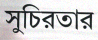
সুচিরতার